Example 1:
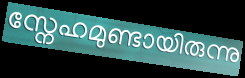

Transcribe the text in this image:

സ്നേഹമുണ്ടായിരുന്നു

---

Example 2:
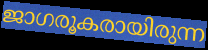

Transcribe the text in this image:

ജാഗരൂകരായിരുന്ന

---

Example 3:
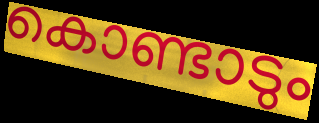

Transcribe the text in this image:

കൊണ്ടാടും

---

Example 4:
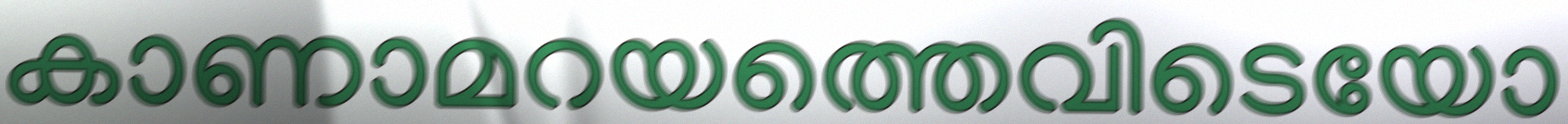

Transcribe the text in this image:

കാണാമറയത്തെവിടെയോ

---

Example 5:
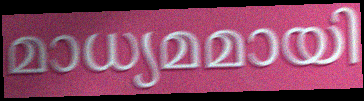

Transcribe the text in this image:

മാധ്യമമായി